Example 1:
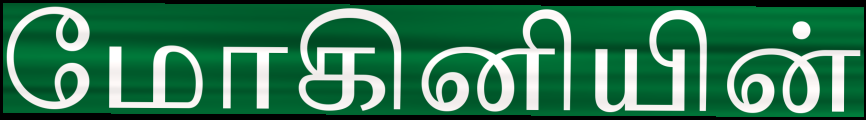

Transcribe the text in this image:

மோகினியின்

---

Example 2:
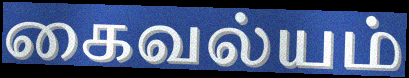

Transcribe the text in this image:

கைவல்யம்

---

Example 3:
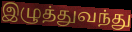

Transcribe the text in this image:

இழுத்துவந்து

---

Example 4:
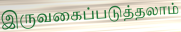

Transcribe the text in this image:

இருவகைப்படுத்தலாம்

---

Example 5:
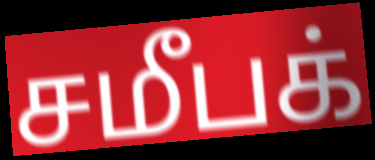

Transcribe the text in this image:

சமீபக்